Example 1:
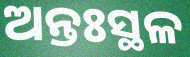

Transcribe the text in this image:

ଅନ୍ତଃସ୍ଥଳ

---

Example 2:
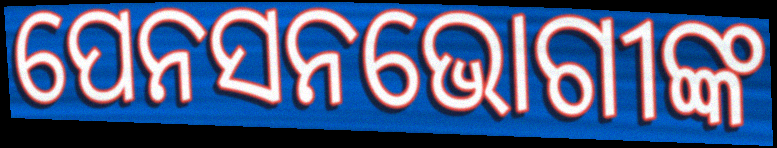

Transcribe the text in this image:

ପେନସନଭୋଗୀଙ୍କ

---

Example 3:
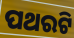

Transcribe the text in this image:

ପଥରଟି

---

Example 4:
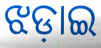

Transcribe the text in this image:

ଝଡ଼ାଇ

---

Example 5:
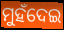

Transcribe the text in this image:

ମୁହଁଦେଇ